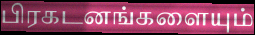
பிரகடனங்களையும்